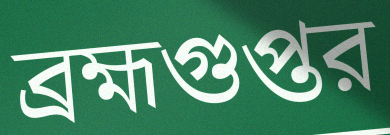
ব্রহ্মগুপ্তর